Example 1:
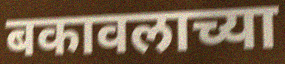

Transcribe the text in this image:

बकावलाच्या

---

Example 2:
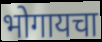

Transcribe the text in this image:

भोगायचा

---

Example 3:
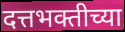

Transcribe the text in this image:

दत्तभक्तीच्या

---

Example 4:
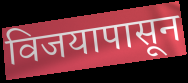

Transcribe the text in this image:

विजयापासून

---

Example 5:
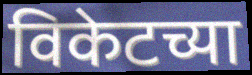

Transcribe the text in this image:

विकेटच्या